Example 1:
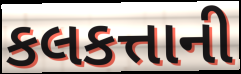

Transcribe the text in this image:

કલકત્તાની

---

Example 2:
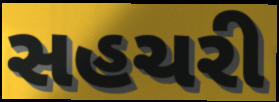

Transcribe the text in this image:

સહચરી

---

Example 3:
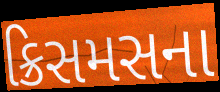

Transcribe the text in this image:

ક્રિસમસના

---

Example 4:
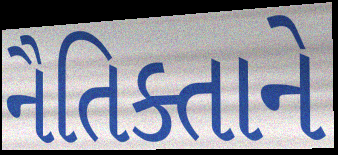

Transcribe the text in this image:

નૈતિક્તાને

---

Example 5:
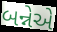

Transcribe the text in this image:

બન્નેએ